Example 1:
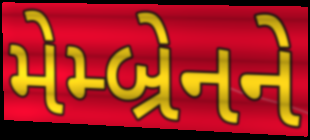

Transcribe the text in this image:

મેમ્બ્રેનને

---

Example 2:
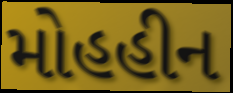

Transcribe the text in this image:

મોહહીન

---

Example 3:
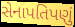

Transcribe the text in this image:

સેનાપતિપણું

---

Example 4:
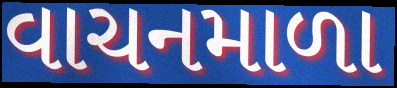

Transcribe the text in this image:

વાચનમાળા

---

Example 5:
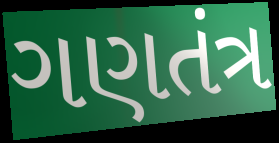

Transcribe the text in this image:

ગણતંત્ર